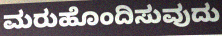
ಮರುಹೊಂದಿಸುವುದು